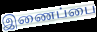
இணைப்பை